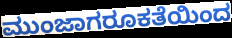
ಮುಂಜಾಗರೂಕತೆಯಿಂದ